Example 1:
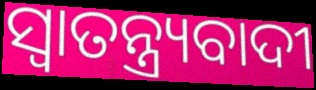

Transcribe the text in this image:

ସ୍ୱାତନ୍ତ୍ର୍ୟବାଦୀ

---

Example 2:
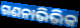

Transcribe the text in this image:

ଗଣନାଭିଭିକ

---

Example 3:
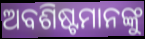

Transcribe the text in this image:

ଅବଶିଷ୍ଟମାନଙ୍କୁ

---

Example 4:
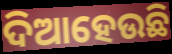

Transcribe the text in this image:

ଦିଆହେଉଛି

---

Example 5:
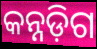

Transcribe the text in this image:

କନ୍ନଡ଼ିଗ